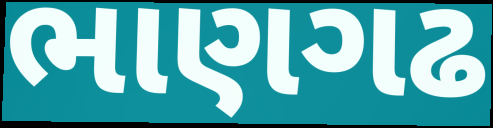
ભાણગઢ